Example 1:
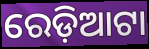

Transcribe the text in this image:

ରେଡ଼ିଆଟା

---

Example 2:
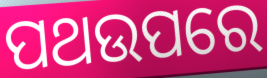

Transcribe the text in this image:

ପଥଉପରେ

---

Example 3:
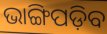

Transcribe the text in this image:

ଭାଙ୍ଗିପଡ଼ିବ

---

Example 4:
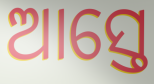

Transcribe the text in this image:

ଆସ୍ତେ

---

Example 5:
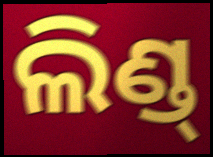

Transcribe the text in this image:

ଲିଣ୍ଡ୍